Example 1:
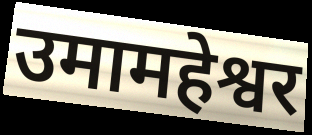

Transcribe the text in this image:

उमामहेश्वर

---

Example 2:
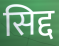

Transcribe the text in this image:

सिद्द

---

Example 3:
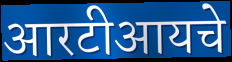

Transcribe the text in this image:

आरटीआयचे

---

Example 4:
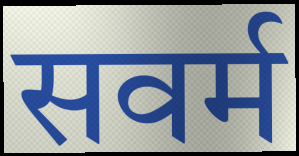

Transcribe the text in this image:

सवर्म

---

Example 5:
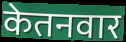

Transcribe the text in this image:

केतनवार